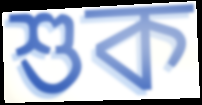
শুক